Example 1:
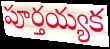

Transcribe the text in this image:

పూర్తయ్యక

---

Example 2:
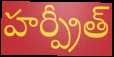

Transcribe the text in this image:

హర్ప్రీత్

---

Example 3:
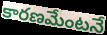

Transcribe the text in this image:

కారణమేంటనే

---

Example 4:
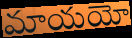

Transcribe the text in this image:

మాయయో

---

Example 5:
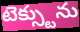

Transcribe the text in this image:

టెక్స్టును